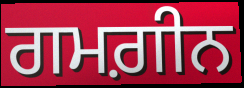
ਗਮਗ਼ੀਨ